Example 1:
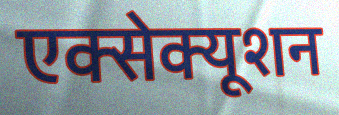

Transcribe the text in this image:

एक्सेक्यूशन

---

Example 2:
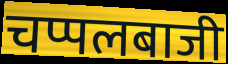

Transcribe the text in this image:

चप्पलबाजी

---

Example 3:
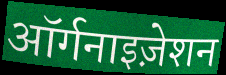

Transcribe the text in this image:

ऑर्गनाइज़ेशन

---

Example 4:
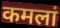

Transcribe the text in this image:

कमलां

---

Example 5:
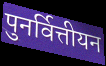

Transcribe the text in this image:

पुनर्वित्तीयन